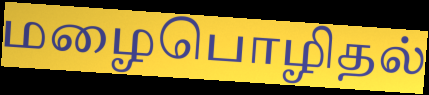
மழைபொழிதல்